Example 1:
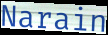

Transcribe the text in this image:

Narain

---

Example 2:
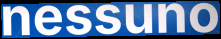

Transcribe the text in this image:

nessuno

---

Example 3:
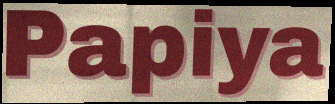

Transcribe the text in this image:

Papiya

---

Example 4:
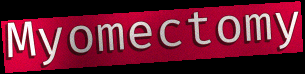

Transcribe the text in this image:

Myomectomy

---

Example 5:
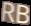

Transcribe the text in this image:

RB